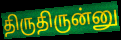
திருதிருன்னு